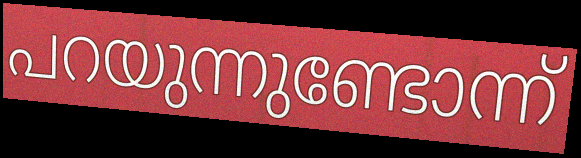
പറയുന്നുണ്ടോന്ന്